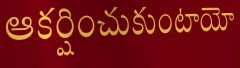
ఆకర్షించుకుంటాయో